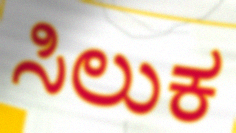
ಸಿಲುಕ